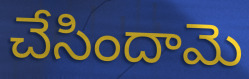
చేసిందామె